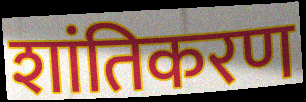
शांतिकरण